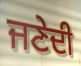
ਜਣੇਦੀ